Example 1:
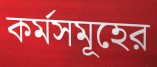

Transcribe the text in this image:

কর্মসমূহের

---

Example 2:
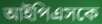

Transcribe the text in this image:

আইপিএসকে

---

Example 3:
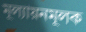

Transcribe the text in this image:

মূল্যায়নমূলক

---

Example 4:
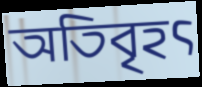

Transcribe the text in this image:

অতিবৃহৎ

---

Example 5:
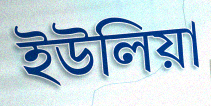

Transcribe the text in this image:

ইউলিয়া